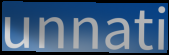
unnati